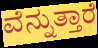
ವೆನ್ನುತ್ತಾರೆ